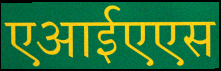
एआईएएस